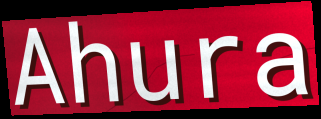
Ahura